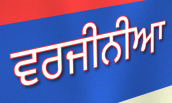
ਵਰਜੀਨੀਆ